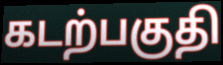
கடற்பகுதி